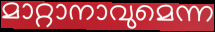
മാറ്റാനാവുമെന്ന